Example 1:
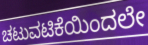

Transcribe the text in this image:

ಚಟುವಟಿಕೆಯಿಂದಲೇ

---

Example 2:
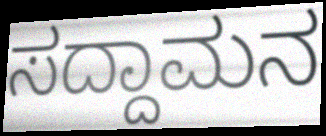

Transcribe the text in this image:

ಸದ್ದಾಮನ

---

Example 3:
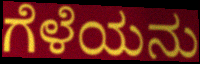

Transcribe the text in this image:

ಗೆಳೆಯನು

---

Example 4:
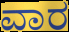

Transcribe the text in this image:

ವಾರ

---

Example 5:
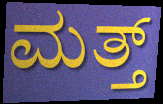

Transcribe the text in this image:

ಮತ್ತ್